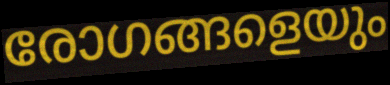
രോഗങ്ങളെയും